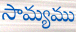
సామ్యము